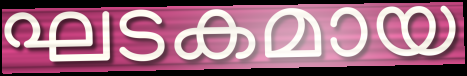
ഘടകമായ